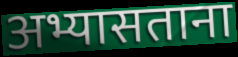
अभ्यासताना